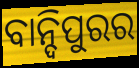
ବାନ୍ଦିପୁରର